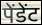
पेंडेंट